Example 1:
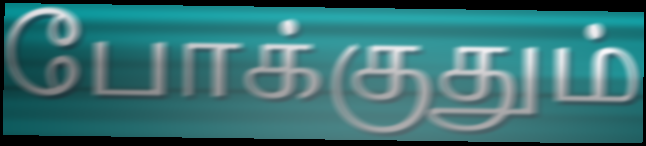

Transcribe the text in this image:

போக்குதும்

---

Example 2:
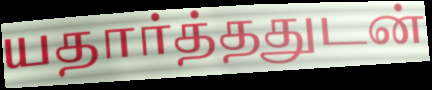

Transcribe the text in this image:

யதார்த்ததுடன்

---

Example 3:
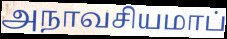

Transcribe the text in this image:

அநாவசியமாப்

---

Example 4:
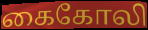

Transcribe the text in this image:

கைகோலி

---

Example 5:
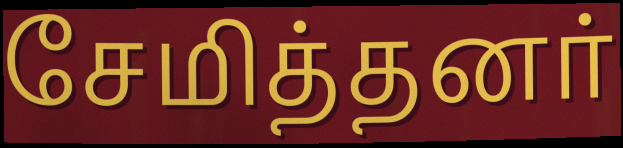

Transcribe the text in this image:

சேமித்தனர்